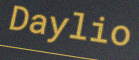
Daylio